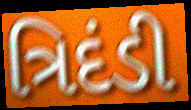
ત્રિદંડી